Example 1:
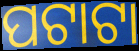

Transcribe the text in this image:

ପଟାଟା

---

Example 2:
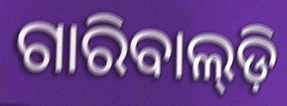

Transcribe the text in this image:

ଗାରିବାଲ୍‌ଡ଼ି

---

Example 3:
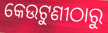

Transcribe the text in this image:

କେଉଟୁଣୀଠାରୁ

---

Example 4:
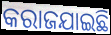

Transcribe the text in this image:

କରାଜଯାଇଛି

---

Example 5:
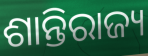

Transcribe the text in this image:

ଶାନ୍ତିରାଜ୍ୟ